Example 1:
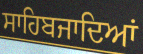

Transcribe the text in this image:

ਸਾਹਿਬਜਾਦਿਆਂ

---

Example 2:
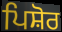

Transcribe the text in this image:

ਪਿਸ਼ੋਰ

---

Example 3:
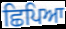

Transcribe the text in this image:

ਛਿਪਿਆ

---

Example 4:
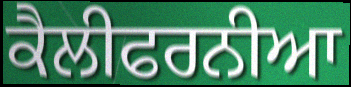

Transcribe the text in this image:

ਕੈਲੀਫਰਨੀਆ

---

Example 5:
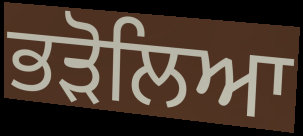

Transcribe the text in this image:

ਭੜੋਲਿਆ